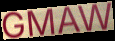
GMAW